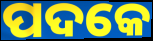
ପଦକେ